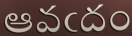
ఆవఁదం